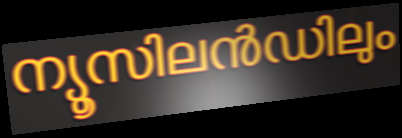
ന്യൂസിലൻഡിലും